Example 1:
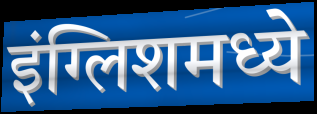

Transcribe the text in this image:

इंग्लिशमध्ये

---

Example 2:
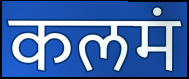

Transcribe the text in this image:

कलमं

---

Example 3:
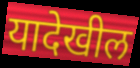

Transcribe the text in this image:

यादेखील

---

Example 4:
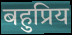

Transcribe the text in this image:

बहुप्रिय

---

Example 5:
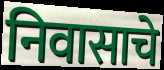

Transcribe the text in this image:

निवासाचे